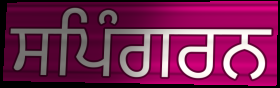
ਸਪਿੰਗਰਨ